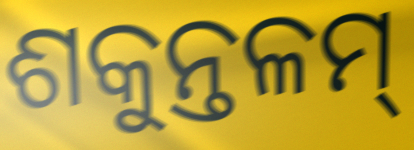
ଶକୁନ୍ତଳମ୍